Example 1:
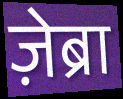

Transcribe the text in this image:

ज़ेब्रा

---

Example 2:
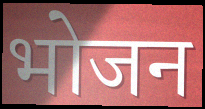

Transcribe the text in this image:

भोजन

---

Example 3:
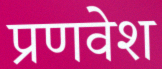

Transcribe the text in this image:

प्रणवेश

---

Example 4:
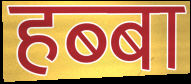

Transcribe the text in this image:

हब्‍बा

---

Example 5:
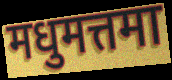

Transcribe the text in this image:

मधुमत्तमा